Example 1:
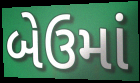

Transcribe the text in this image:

બેઉમાં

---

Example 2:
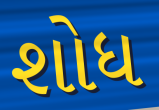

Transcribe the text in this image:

શોધ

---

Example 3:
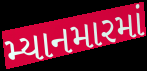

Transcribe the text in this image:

મ્યાનમારમાં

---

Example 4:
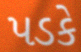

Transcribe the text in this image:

પડકે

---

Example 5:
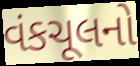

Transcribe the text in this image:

વંકચૂલનો